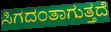
ಸಿಗದಂತಾಗುತ್ತದೆ